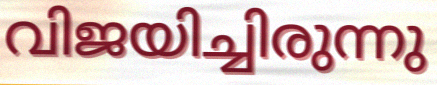
വിജയിച്ചിരുന്നു